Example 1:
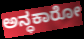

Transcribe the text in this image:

ಅನ್ಧಕಾರೋ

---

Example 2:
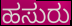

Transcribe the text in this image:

ಹಸುರು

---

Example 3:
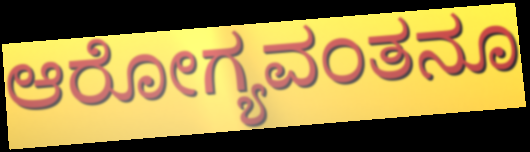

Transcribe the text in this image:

ಆರೋಗ್ಯವಂತನೂ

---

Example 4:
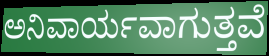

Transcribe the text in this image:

ಅನಿವಾರ್ಯವಾಗುತ್ತವೆ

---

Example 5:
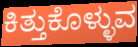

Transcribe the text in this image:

ಕಿತ್ತುಕೊಳ್ಳುವ